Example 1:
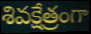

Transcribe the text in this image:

శివక్షేత్రంగా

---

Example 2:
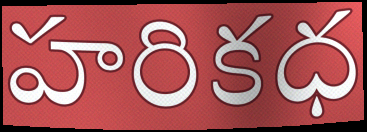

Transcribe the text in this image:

హరికధ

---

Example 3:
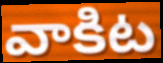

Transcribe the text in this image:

వాకిట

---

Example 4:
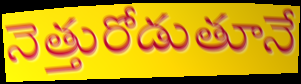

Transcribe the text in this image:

నెత్తురోడుతూనే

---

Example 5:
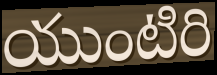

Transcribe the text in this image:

యుంటిరి